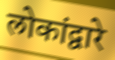
लोकांद्वारे